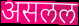
असलल